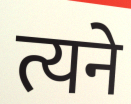
त्यने